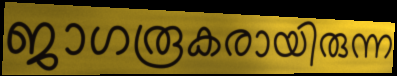
ജാഗരൂകരായിരുന്ന